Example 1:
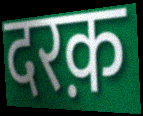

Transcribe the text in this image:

दरक़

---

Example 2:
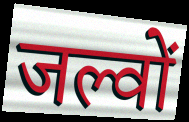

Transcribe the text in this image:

जल्वों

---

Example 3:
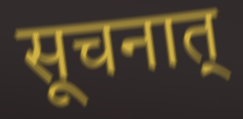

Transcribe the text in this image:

सूचनात्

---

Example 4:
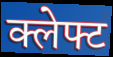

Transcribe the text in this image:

क्लेफ्ट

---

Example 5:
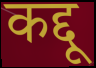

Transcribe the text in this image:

कद्दू